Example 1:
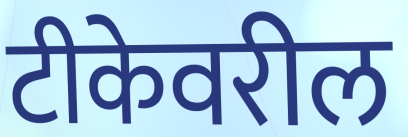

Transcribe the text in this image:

टीकेवरील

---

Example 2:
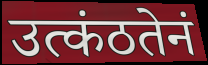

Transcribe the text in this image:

उत्कंठतेनं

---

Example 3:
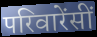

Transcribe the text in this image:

परिवारेंसीं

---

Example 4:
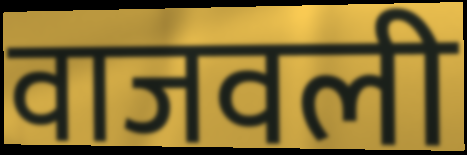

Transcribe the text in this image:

वाजवली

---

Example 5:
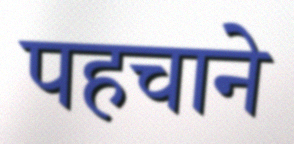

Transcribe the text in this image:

पहचाने